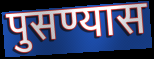
पुसण्यास